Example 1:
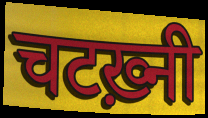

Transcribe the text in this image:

चटख़्नी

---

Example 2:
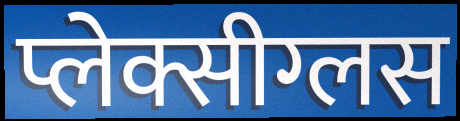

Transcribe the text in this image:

प्लेक्सीग्लस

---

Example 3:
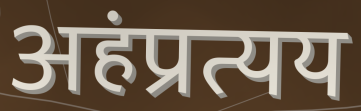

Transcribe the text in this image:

अहंप्रत्यय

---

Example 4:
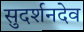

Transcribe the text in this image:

सुदर्शनदेव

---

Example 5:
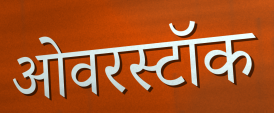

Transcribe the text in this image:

ओवरस्टॉक